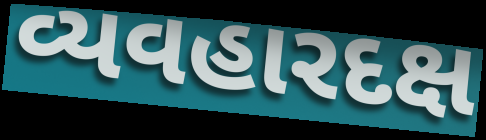
વ્યવહારદક્ષ